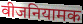
वीजनियामक